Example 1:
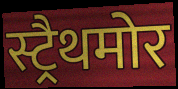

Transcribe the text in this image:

स्ट्रैथमोर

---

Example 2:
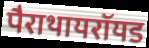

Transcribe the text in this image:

पैराथायरॉयड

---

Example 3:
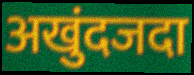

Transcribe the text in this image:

अखुंदजदा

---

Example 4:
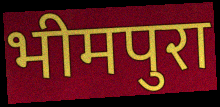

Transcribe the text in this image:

भीमपुरा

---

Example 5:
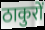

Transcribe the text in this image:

ठाकुरों